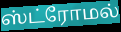
ஸ்ட்ரோமல்